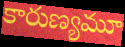
కారుణ్యమూ